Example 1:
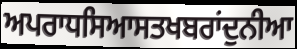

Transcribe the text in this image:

ਅਪਰਾਧਸਿਆਸਤਖਬਰਾਂਦੁਨੀਆ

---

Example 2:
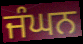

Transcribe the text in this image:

ਜੰਘਨ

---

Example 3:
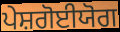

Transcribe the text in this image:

ਪੇਸ਼ਗੋਈਯੋਗ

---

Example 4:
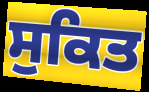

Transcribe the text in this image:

ਸੁਕਿਤ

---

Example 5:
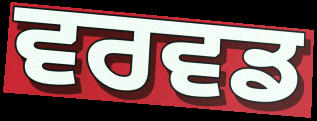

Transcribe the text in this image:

ਵਰਵਡ